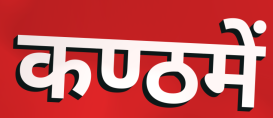
कण्ठमें